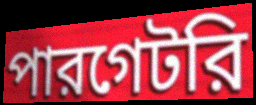
পারগেটরি